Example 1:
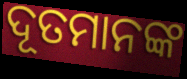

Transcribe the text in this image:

ଦୂତମାନଙ୍କ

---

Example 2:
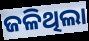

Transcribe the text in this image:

ଜଳିଥିଲା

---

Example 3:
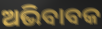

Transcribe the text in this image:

ଅଭିବାବକ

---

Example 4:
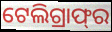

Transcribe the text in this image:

ଟେଲିଗ୍ରାଫ୍‌ର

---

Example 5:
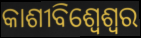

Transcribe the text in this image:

କାଶୀବିଶ୍ୱେଶ୍ୱର